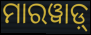
ମାରୱାଡ଼୍